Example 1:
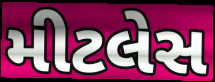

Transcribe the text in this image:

મીટલેસ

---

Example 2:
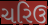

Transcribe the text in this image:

ચરિઉ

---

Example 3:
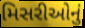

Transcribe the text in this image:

મિસરીઓનું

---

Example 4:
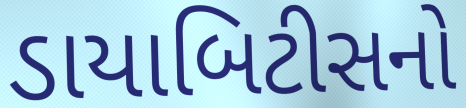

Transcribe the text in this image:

ડાયાબિટીસનો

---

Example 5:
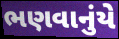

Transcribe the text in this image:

ભણવાનુંયે